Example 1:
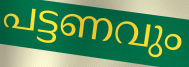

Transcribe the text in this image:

പട്ടണവും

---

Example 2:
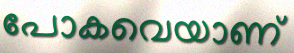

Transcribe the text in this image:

പോകവെയാണ്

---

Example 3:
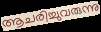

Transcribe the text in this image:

ആചരിച്ചുവരുന്നു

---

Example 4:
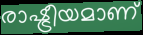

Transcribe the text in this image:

രാഷ്ട്രീയമാണ്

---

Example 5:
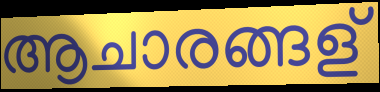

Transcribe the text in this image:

ആചാരങ്ങള്